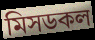
মিসডকল